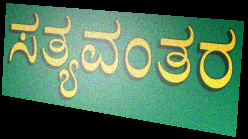
ಸತ್ಯವಂತರ